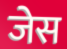
जेस